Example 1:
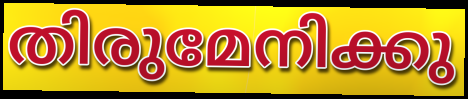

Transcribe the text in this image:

തിരുമേനിക്കു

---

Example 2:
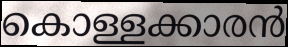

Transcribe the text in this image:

കൊള്ളക്കാരൻ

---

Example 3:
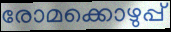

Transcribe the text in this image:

രോമക്കൊഴുപ്പ്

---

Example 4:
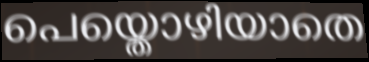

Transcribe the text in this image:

പെയ്തൊഴിയാതെ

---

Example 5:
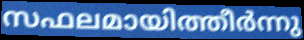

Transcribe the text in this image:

സഫലമായിത്തീർന്നു